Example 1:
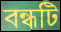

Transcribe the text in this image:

বন্ধটি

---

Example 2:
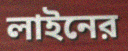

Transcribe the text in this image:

লাইনের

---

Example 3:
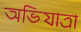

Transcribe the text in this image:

অভিযাত্রা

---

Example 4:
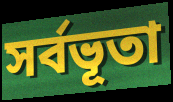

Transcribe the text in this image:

সর্বভূতা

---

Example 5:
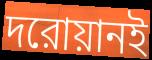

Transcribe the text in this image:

দরোয়ানই